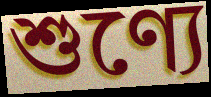
শুণ্যে